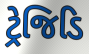
ટ્રેજિડિ